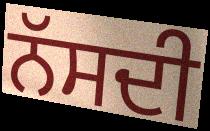
ਨੱਸਦੀ